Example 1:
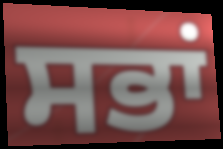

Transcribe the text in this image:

ਸਭਾਂ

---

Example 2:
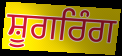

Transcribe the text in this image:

ਸ਼ੂਗਰਿੰਗ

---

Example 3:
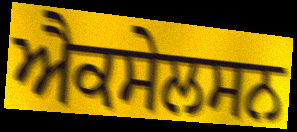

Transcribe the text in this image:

ਐਕਸੇਲਸਨ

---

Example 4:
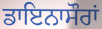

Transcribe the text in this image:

ਡਾਇਨਾਸੌਰਾਂ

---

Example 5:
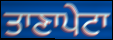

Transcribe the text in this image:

ਤਾਣਾਪੇਟਾ